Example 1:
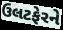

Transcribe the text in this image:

ઉલટફેરને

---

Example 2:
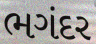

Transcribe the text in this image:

ભગંદર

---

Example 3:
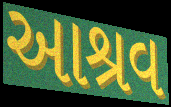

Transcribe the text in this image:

આશ્રવ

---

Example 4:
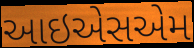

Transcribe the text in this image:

આઇએસએમ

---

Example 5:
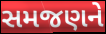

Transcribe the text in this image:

સમજણને